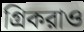
গ্রিকরাও